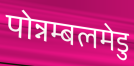
पोन्नम्बलमेडु